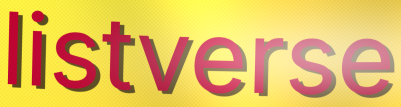
listverse